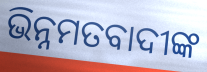
ଭିନ୍ନମତବାଦୀଙ୍କ